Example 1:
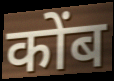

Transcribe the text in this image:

कोंब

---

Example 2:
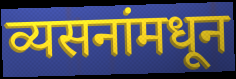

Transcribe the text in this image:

व्यसनांमधून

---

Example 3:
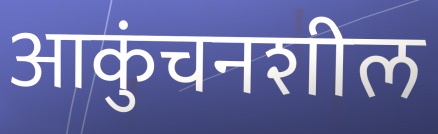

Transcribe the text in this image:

आकुंचनशील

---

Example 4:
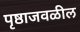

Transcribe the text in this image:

पृष्ठाजवळील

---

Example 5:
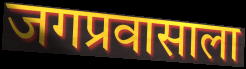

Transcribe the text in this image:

जगप्रवासाला